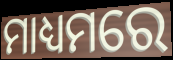
ମାଧ୍ୟମରେ